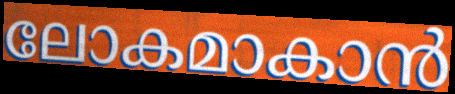
ലോകമാകാൻ